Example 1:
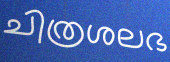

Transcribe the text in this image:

ചിത്രശലഭ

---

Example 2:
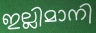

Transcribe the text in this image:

ഇല്ലിമാനി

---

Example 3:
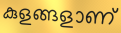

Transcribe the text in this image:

കുളങ്ങളാണ്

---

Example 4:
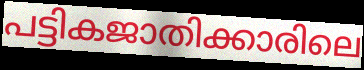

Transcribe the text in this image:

പട്ടികജാതിക്കാരിലെ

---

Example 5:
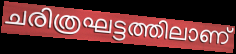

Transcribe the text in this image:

ചരിത്രഘട്ടത്തിലാണ്